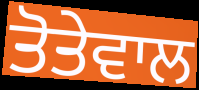
ਤੋਤੇਵਾਲ